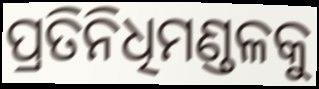
ପ୍ରତିନିଧିମଣ୍ଡଳକୁ